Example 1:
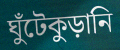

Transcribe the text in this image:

ঘুঁটেকুড়ানি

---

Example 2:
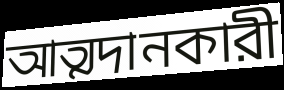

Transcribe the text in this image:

আত্মদানকারী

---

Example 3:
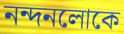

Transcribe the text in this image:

নন্দনলোকে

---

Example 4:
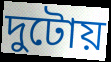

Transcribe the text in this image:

দুটোয়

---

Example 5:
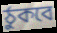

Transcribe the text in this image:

ঠুকবে